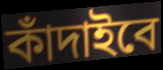
কাঁদাইবে